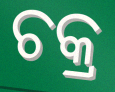
ଚକ୍ର